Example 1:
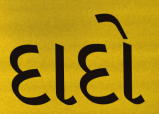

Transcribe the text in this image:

દાદો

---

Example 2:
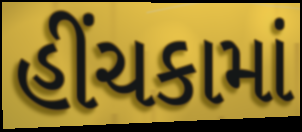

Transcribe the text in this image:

હીંચકામાં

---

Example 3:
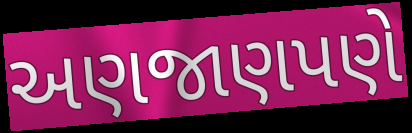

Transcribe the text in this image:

અણજાણપણે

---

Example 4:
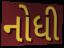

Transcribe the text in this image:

નોધી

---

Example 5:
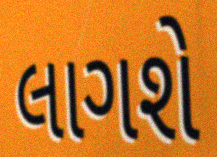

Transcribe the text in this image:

લાગશે